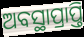
ଅବସ୍ଥାପ୍ରାପ୍ତି